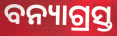
ବନ୍ୟାଗ୍ରସ୍ତ